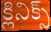
క్లినిక్స్